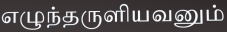
எழுந்தருளியவனும்